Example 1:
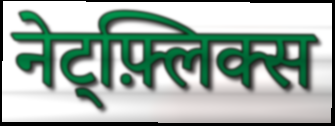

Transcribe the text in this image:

नेट्फ़्लिक्स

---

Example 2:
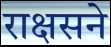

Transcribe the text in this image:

राक्षसने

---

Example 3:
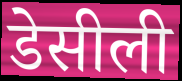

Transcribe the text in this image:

डेसीली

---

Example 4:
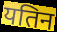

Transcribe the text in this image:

यतिन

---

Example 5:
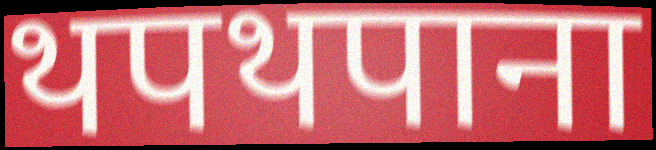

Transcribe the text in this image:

थपथपाना